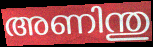
അണിന്തു